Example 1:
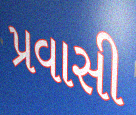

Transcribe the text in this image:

પ્રવાસી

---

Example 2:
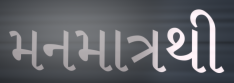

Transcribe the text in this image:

મનમાત્રથી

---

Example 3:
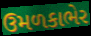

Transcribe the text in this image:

ઉમળકાભેર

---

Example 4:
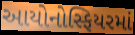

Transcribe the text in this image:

આયોનોસ્ફિયરમાં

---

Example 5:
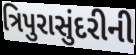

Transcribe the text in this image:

ત્રિપુરાસુંદરીની